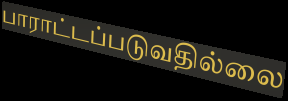
பாராட்டப்படுவதில்லை